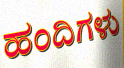
ಹಂದಿಗಳು